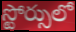
స్టోర్సులో